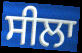
ਸੀਲਾ